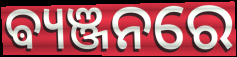
ଵ୍ୟଞ୍ଜନରେ